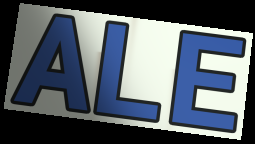
ALE